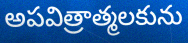
అపవిత్రాత్మలకును